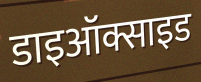
डाइऑक्साइड